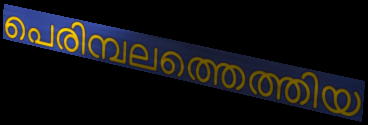
പെരിമ്പലത്തെത്തിയ